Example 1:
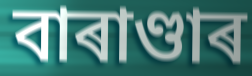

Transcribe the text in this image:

বাৰাণ্ডাৰ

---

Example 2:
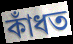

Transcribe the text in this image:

কাঁধত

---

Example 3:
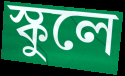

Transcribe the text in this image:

স্কুলে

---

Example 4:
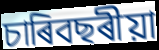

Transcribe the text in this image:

চাৰিবছৰীয়া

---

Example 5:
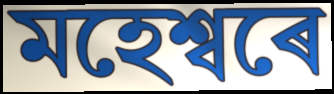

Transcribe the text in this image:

মহেশ্বৰে